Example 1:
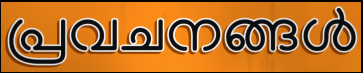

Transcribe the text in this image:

പ്രവചനങ്ങൾ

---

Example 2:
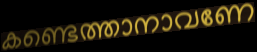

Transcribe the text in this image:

കണ്ടെത്താനാവണേ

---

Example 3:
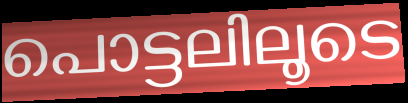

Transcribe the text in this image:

പൊട്ടലിലൂടെ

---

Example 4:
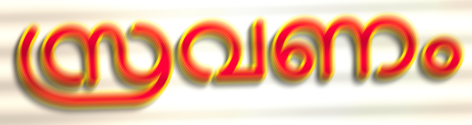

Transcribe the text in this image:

സ്രവണം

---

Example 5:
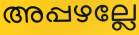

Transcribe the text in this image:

അപ്പഴല്ലേ